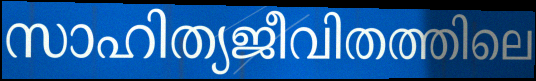
സാഹിത്യജീവിതത്തിലെ